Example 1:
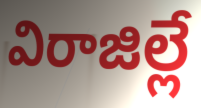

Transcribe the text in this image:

విరాజిల్లే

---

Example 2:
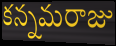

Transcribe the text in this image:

కన్నమరాజు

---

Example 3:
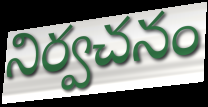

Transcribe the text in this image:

నిర్వచనం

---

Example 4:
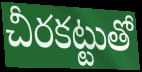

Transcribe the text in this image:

చీరకట్టుతో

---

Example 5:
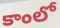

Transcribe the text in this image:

కాంలో